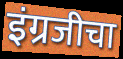
इंग्रजीचा